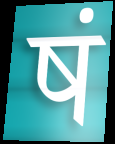
षं